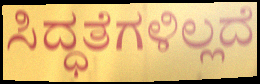
ಸಿದ್ಧತೆಗಳಿಲ್ಲದೆ